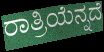
ರಾತ್ರಿಯೆನ್ನದೆ